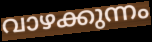
വാഴക്കുന്നം